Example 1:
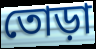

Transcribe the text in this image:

তোড়া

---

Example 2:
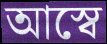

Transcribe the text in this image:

আস্বে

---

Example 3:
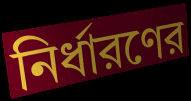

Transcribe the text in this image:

নির্ধারণের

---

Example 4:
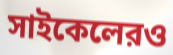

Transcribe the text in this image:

সাইকেলেরও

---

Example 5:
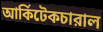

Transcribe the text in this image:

আর্কিটেকচারাল